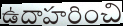
ఉదాహరించి